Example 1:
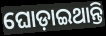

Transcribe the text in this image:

ଘୋଡ଼ାଇଥାନ୍ତି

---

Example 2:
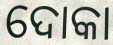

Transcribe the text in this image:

ଦୋକା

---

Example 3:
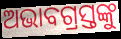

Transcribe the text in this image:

ଅଭାବଗ୍ରସ୍ତଙ୍କୁ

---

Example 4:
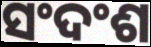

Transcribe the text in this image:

ସଂଦଂଶ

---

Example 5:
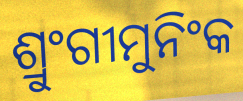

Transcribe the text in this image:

ଶ୍ରୁଂଗୀମୁନିଂକ